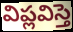
విప్లవిస్తె